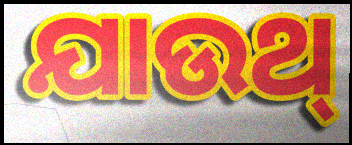
ଯାଉଥ୍